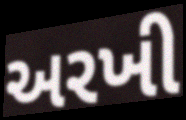
અરખી